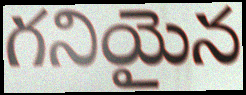
గనియైన